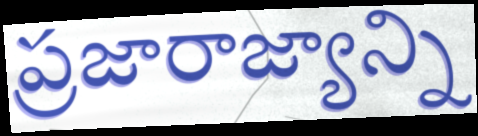
ప్రజారాజ్యాన్ని